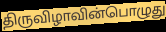
திருவிழாவின்பொழுது